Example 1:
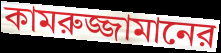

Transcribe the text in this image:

কামরুজ্জামানের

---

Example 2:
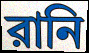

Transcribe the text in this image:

রানি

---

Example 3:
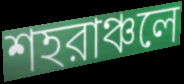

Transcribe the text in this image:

শহরাঞ্চলে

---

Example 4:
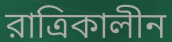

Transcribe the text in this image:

রাত্রিকালীন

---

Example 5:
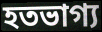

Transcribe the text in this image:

হতভাগ্য